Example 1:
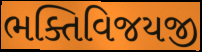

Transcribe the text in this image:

ભક્તિવિજયજી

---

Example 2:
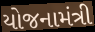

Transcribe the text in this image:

યોજનામંત્રી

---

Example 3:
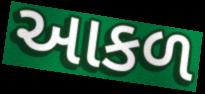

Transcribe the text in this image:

આકળ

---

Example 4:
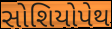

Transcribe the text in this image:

સોશિયોપેથ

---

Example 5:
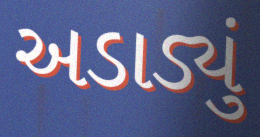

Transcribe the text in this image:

અડાડ્યું